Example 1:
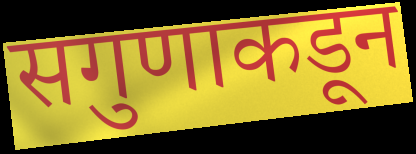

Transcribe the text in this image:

सगुणाकडून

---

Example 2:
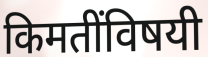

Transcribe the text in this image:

किमतींविषयी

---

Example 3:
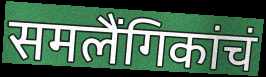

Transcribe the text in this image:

समलैंगिकांचं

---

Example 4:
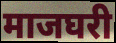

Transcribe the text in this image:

माजघरी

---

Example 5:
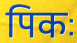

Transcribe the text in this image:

पिकः